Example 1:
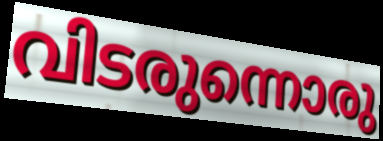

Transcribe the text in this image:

വിടരുന്നൊരു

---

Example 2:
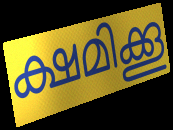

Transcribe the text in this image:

ക്ഷമിക്കൂ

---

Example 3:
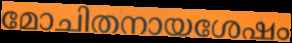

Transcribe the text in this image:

മോചിതനായശേഷം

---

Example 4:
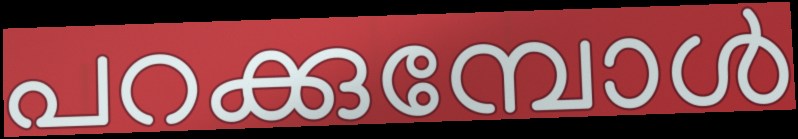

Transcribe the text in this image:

പറക്കുമ്പോൾ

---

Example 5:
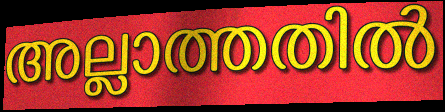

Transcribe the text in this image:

അല്ലാത്തതിൽ